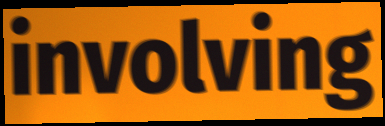
involving